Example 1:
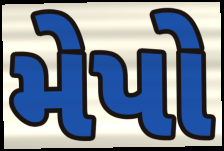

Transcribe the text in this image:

મેપો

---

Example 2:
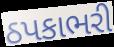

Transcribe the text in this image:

ઠપકાભરી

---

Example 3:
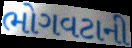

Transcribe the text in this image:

ભોગવટાની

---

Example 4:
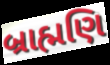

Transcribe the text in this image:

બ્રાહ્મણિ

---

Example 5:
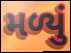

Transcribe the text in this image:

મળ્યું